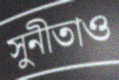
সুনীতাও